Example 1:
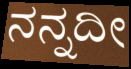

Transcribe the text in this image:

ನನ್ನದೀ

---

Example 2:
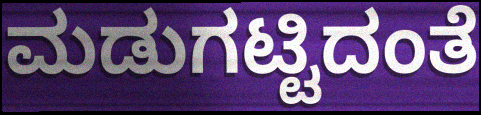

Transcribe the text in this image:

ಮಡುಗಟ್ಟಿದಂತೆ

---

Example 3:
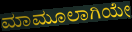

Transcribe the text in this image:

ಮಾಮೂಲಾಗಿಯೇ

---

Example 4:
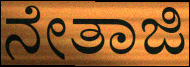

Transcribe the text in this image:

ನೇತಾಜಿ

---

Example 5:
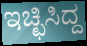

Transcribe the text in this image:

ಇಚ್ಛಿಸಿದ್ದ